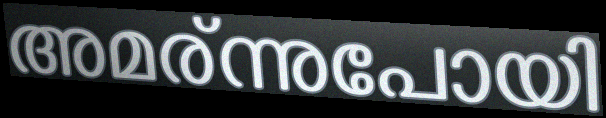
അമര്ന്നുപോയി